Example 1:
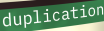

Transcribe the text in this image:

duplication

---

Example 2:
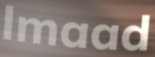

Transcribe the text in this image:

Imaad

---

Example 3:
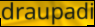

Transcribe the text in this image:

draupadi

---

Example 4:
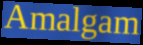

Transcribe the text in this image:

Amalgam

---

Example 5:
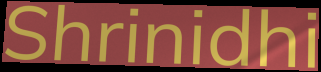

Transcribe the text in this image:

Shrinidhi